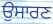
ਉਸਾਰਣ